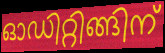
ഓഡിറ്റിങ്ങിന്